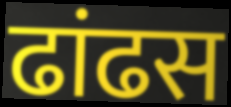
ढांढस